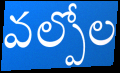
వల్పోల